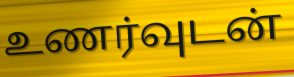
உணர்வுடன்